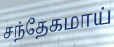
சந்தேகமாய்